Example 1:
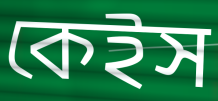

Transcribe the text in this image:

কেইস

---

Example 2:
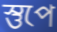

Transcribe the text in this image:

স্তুপে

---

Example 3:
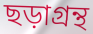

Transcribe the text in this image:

ছড়াগ্রন্থ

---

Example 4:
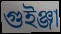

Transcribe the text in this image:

গুইঞ্জা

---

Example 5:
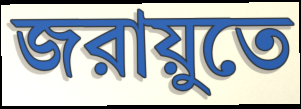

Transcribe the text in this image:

জরায়ুতে